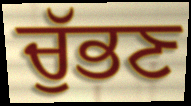
ਚੁੱਭਣ